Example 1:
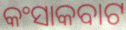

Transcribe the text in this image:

କଂସାକବାଟ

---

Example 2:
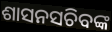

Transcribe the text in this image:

ଶାସନସଚିବଙ୍କ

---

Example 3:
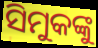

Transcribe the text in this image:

ସିମୁକଙ୍କୁ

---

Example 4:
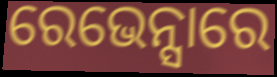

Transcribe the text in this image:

ରେଭେନ୍ସାରେ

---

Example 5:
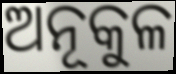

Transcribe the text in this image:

ଅନୂକୁଳ